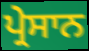
ਪ੍ਰੇਸਾਨ